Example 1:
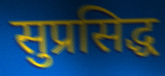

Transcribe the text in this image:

सुप्रसिद्ध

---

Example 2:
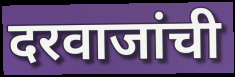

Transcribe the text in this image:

दरवाजांची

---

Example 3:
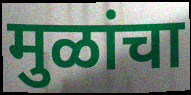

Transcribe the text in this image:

मुळांचा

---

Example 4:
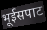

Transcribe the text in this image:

भूईसपाट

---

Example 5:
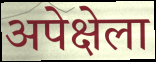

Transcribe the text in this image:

अपेक्षेला